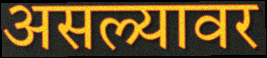
असल्यावर